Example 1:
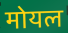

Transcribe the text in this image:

मोयल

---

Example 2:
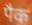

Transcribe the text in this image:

पैक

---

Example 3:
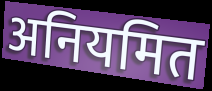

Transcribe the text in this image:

अनियमित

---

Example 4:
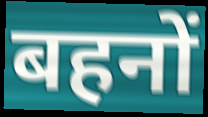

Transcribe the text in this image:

बहनों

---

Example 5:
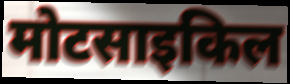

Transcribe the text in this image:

मोटसाइकिल